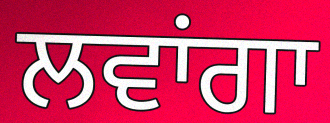
ਲਵਾਂਗਾ